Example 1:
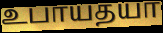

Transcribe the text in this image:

உபாயதயா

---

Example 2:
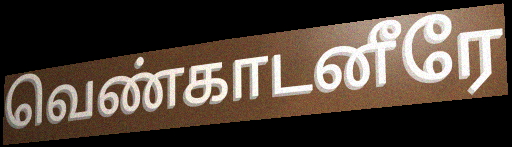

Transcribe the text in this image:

வெண்காடனீரே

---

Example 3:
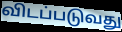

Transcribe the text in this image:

விடப்படுவது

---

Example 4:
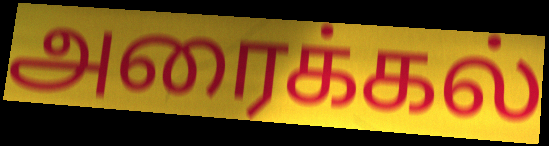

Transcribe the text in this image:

அரைக்கல்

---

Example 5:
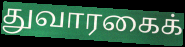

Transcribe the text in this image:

துவாரகைக்